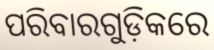
ପରିବାରଗୁଡ଼ିକରେ